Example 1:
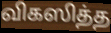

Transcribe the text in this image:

விகஸித்த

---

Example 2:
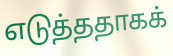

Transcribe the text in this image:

எடுத்ததாகக்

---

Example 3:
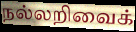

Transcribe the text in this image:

நல்லறிவைக்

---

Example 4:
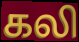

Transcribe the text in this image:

கலி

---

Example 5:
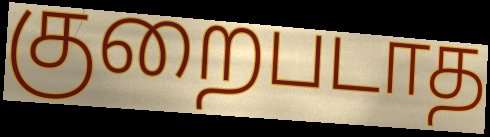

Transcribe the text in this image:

குறைபடாத